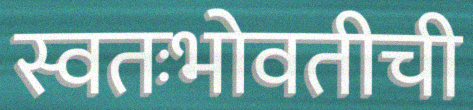
स्वतःभोवतीची